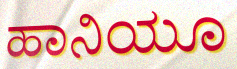
ಹಾನಿಯೂ